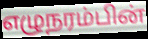
எழுநரம்பின்